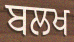
ਬਲਖ